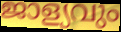
ജാള്യവും